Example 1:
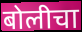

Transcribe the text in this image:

बोलीचा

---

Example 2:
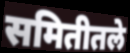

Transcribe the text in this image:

समितीतले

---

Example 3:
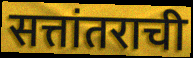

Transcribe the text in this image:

सत्तांतराची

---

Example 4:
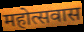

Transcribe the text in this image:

महोत्सवास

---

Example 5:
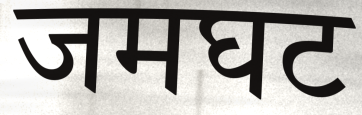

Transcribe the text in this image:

जमघट